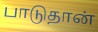
பாடுதான்